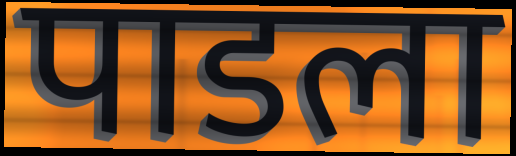
पाडला